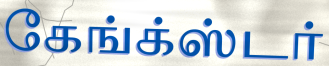
கேங்க்ஸ்டர்